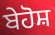
ਬੇਹੋਸ਼